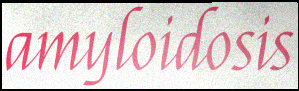
amyloidosis